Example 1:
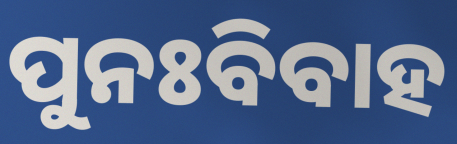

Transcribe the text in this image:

ପୁନଃବିବାହ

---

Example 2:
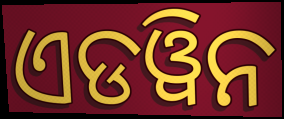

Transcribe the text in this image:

ଏଡୱିନ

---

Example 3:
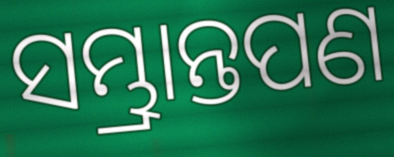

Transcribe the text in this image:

ସମ୍ଭ୍ରାନ୍ତପଣ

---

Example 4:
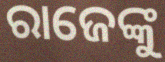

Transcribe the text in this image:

ରାଜେଙ୍କୁ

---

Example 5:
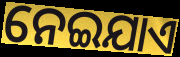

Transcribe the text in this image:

ନେଇଯାଏ